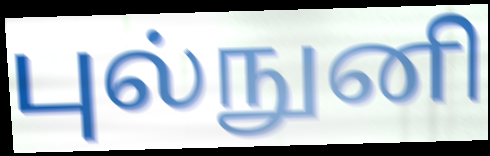
புல்நுனி